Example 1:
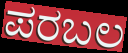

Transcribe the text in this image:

ಪರಬಲ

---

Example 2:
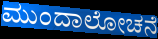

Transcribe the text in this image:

ಮುಂದಾಲೋಚನೆ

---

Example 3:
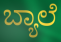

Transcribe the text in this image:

ಬ್ಯಾಲೆ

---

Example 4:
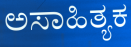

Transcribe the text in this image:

ಅಸಾಹಿತ್ಯಕ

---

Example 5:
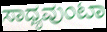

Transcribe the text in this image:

ಸಾಧ್ಯವುಂಟಾ